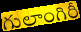
గులాంగిరీ